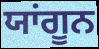
ਯਾਂਗੂਨ